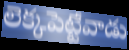
లెక్కపెట్టేవాడు